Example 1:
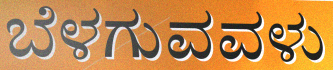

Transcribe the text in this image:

ಬೆಳಗುವವಳು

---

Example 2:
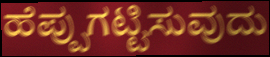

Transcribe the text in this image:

ಹೆಪ್ಪುಗಟ್ಟಿಸುವುದು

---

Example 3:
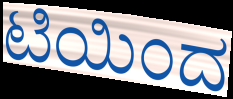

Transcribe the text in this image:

ಟಿಯಿಂದ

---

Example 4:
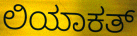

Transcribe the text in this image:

ಲಿಯಾಕತ್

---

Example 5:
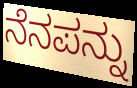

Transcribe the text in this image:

ನೆನಪನ್ನು